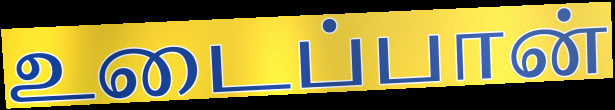
உடைப்பான்